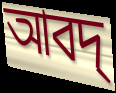
আবদ্